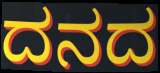
ದನದ